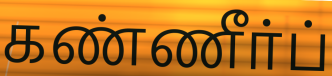
கண்ணீர்ப்